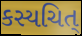
કસ્યચિત્